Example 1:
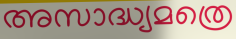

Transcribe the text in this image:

അസാദ്ധ്യമത്രെ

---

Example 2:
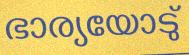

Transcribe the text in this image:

ഭാര്യയോടു്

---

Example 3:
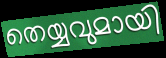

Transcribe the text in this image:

തെയ്യവുമായി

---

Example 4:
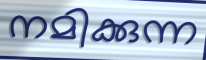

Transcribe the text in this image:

നമിക്കുന്ന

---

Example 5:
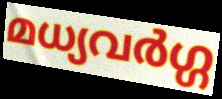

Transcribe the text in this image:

മധ്യവർഗ്ഗ